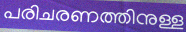
പരിചരണത്തിനുള്ള